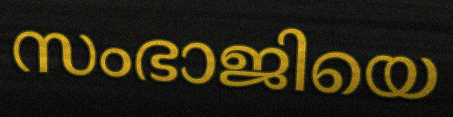
സംഭാജിയെ